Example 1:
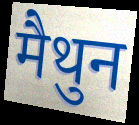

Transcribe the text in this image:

मैथुन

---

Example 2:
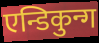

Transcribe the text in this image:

एन्डिकुन्ग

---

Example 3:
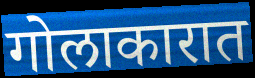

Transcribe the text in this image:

गोलाकारात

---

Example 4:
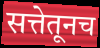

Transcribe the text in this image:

सत्तेतूनच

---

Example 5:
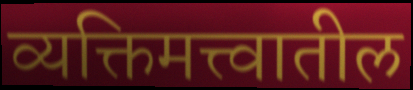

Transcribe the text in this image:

व्यक्तिमत्त्वातील